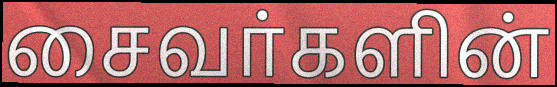
சைவர்களின்